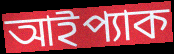
আইপ্যাক